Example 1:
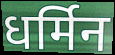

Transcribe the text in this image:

धर्मिन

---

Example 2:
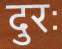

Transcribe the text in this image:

दुरः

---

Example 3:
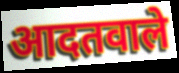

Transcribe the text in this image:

आदतवाले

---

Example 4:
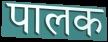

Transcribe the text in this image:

पालक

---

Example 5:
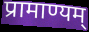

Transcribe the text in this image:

प्रामाण्यम्